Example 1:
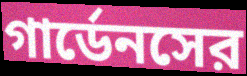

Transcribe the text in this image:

গার্ডেনসের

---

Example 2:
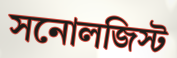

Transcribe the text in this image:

সনোলজিস্ট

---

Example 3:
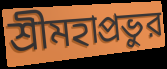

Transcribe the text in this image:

শ্রীমহাপ্রভুর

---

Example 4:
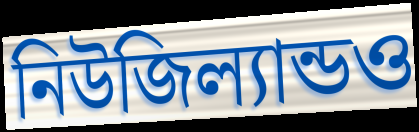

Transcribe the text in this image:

নিউজিল্যান্ডও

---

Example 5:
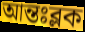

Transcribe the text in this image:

আন্তঃব্লক